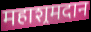
महाश्रमदान